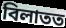
বিলাতত